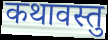
कथावस्तु